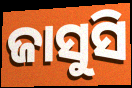
ଜାସୁସି